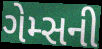
ગેમ્સની